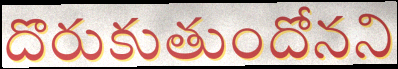
దొరుకుతుందోనని